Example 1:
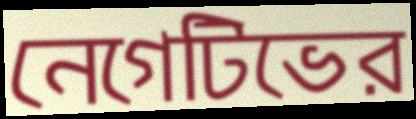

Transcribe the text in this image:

নেগেটিভের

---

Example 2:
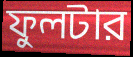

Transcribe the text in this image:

ফুলটার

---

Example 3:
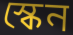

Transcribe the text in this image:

স্কেন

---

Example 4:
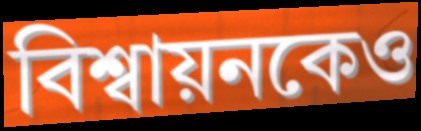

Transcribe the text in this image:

বিশ্বায়নকেও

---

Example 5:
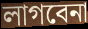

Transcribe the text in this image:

লাগবেনা